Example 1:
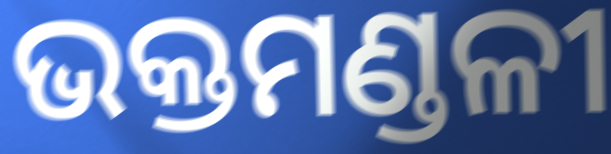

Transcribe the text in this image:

ଭକ୍ତମଣ୍ଡଳୀ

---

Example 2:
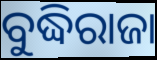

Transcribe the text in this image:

ବୁଦ୍ଧିରାଜା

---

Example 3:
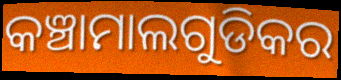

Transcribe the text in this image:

କଞ୍ଚାମାଲଗୁଡିକର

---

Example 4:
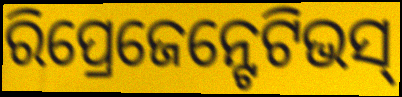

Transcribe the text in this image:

ରିପ୍ରେଜେନ୍ଟେଟିଭସ୍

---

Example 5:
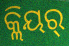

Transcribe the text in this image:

କ୍ଲିୟର୍